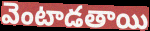
వెంటాడతాయి